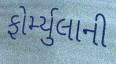
ફોર્મ્યુલાની